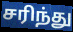
சரிந்து